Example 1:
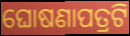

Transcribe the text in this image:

ଘୋଷଣାପତ୍ରଟି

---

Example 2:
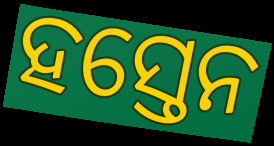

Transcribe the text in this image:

ହସ୍ତେନ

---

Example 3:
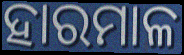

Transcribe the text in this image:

ହାରମାଳ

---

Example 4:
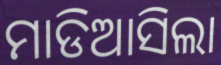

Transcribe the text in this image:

ମାଡିଆସିଲା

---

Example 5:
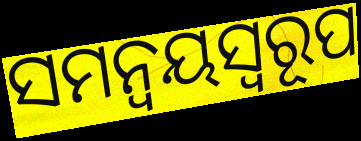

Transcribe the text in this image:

ସମନ୍ୱୟସ୍ୱରୂପ